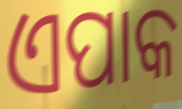
ଏପାକ